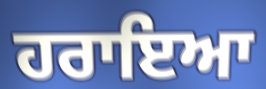
ਹਰਾਇਆ